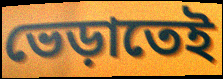
ভেড়াতেই